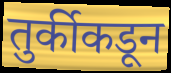
तुर्कीकडून